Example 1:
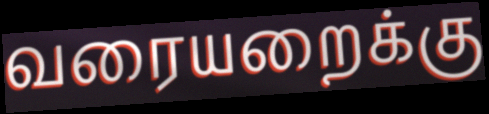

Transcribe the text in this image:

வரையறைக்கு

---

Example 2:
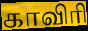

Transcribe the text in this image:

காவிரி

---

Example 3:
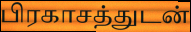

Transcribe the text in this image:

பிரகாசத்துடன்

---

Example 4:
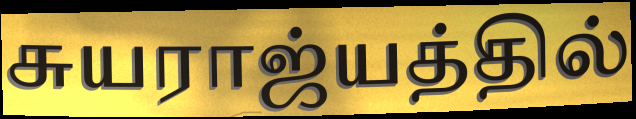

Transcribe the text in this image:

சுயராஜ்யத்தில்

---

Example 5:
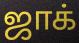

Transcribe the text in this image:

ஜாக்